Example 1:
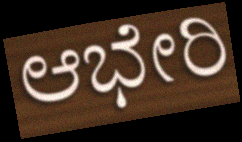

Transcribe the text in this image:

ಆಭೇರಿ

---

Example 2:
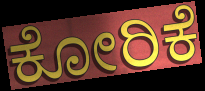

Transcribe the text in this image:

ಕೋರಿಕೆ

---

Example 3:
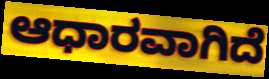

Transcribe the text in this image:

ಆಧಾರವಾಗಿದೆ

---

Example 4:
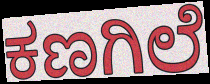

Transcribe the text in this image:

ಕಣಗಿಲೆ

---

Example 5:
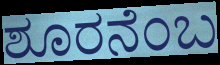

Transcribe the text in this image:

ಶೂರನೆಂಬ